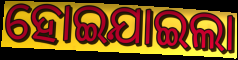
ହୋଇଯାଇଲା